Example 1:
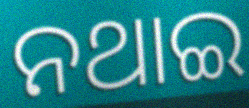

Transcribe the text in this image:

ନଥାଇ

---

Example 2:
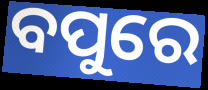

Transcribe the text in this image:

ବପୁରେ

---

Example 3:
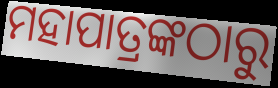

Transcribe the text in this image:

ମହାପାତ୍ରଙ୍କଠାରୁ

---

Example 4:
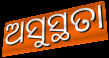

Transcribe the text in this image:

ଅସୁସ୍ଥତା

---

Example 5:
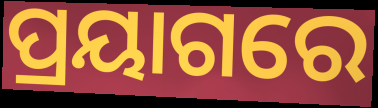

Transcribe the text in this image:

ପ୍ରୟାଗରେ